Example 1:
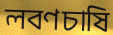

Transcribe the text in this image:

লবণচাষি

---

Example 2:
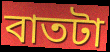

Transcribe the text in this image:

বাতটা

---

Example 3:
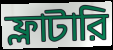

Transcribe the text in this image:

ফ্লাটারি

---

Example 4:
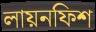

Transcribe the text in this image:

লায়নফিশ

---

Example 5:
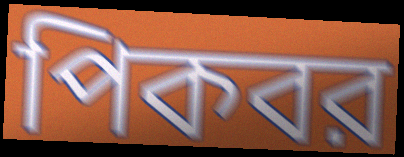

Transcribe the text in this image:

পিকবর